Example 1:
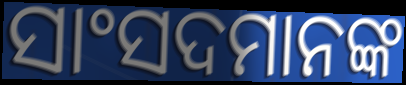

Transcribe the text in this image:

ସାଂସଦମାନଙ୍କ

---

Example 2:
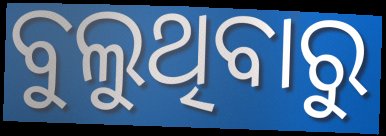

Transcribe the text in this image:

ବୁଲୁଥିବାରୁ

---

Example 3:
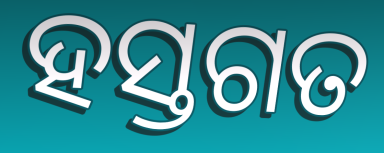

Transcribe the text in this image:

ହସ୍ତଗତ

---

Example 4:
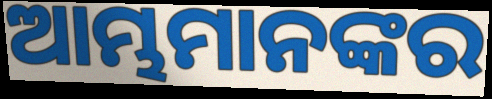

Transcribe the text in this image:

ଆମ୍ଭମାନଙ୍କର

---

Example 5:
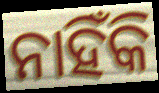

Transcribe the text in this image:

ନାହିଁକି